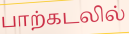
பாற்கடலில்